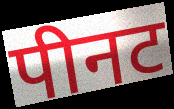
पीनट